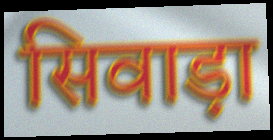
सिवाड़ा